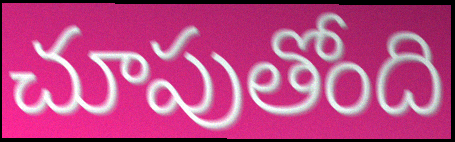
చూపుతోంది